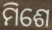
ମିଶେ